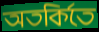
অতর্কিতে